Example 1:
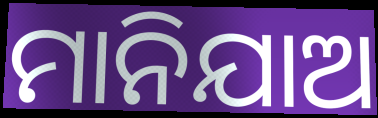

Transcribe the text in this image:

ମାନିଯାଅ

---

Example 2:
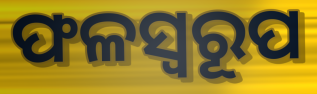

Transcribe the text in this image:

ଫଳସ୍ୱରୂପ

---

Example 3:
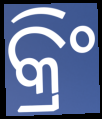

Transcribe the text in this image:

କ୍ରିଂ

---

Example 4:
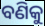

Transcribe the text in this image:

ବଣିକୁ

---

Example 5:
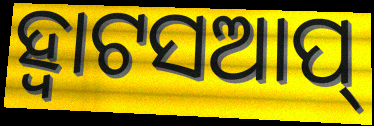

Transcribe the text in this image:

ହ୍ବାଟସଆପ୍